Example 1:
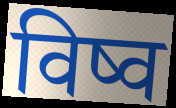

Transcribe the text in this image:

विष्व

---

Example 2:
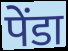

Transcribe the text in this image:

पेंडा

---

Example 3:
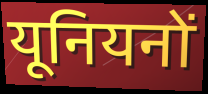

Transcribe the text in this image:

यूनियनों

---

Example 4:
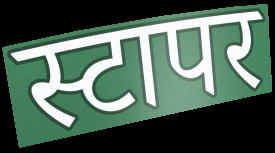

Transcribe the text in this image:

स्टापर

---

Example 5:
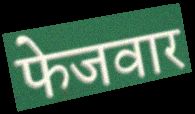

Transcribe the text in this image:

फेजवार